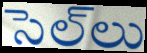
సెల్‌లు